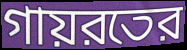
গায়রতের